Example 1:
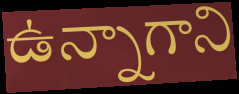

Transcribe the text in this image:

ఉన్నాగాని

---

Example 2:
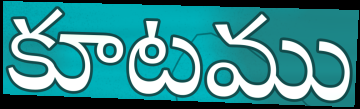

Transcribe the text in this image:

కూటము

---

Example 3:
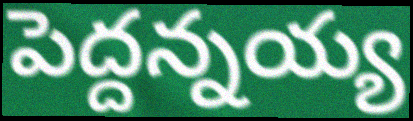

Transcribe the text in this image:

పెద్దన్నయ్య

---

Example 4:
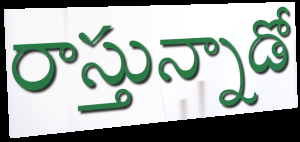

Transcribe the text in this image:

రాస్తున్నాడో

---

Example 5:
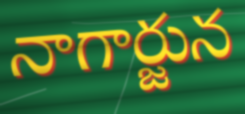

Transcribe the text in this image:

నాగార్జున